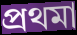
প্রথমা